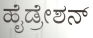
ಹೈಡ್ರೇಶನ್